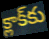
క్లాక్‌కు